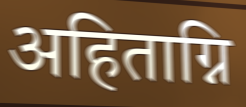
अहिताग्नि